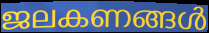
ജലകണങ്ങൾ